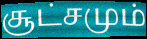
சூட்சமும்